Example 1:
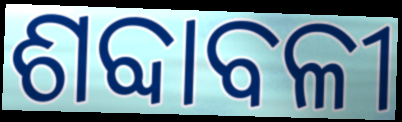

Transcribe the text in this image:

ଶବ୍ଦାବଳୀ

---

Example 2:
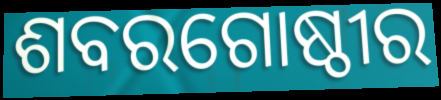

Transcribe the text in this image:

ଶବରଗୋଷ୍ଠୀର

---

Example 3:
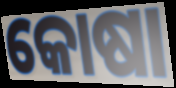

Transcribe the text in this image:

କୋଷା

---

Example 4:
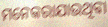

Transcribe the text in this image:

ମନେକରାଯାଉଥିବା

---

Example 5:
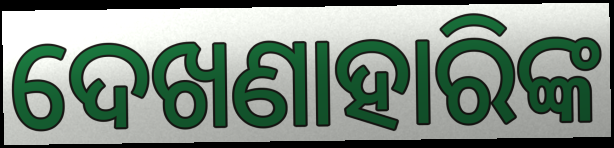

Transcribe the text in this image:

ଦେଖଣାହାରିଙ୍କ